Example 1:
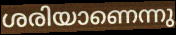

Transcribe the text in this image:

ശരിയാണെന്നു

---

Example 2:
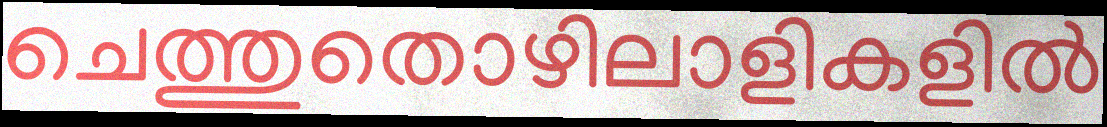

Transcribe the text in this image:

ചെത്തുതൊഴിലാളികളിൽ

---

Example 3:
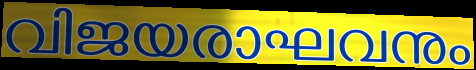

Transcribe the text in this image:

വിജയരാഘവനും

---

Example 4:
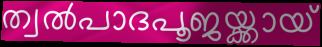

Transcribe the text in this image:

ത്വൽപാദപൂജയ്ക്കായ്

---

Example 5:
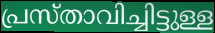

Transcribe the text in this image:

പ്രസ്താവിച്ചിട്ടുള്ള